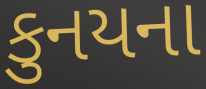
કુનયના